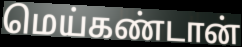
மெய்கண்டான்